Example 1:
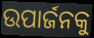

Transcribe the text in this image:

ଉପାର୍ଜନକୁ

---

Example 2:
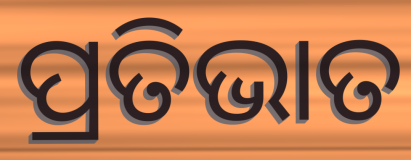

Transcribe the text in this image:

ପ୍ରତିଭାତ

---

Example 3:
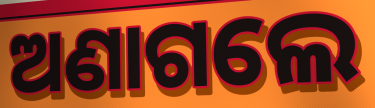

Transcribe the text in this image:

ଅଣାଗଲେ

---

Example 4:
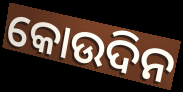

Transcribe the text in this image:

କୋଉଦିନ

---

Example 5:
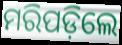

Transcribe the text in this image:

ମରିପଡ଼ିଲେ